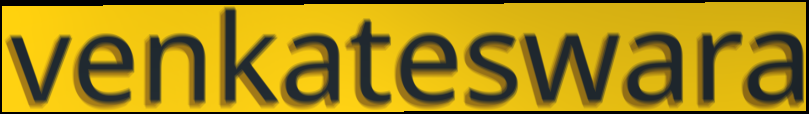
venkateswara